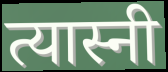
त्यास्नी